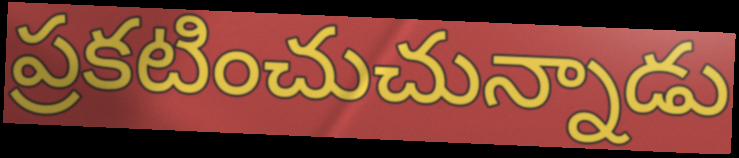
ప్రకటించుచున్నాడు